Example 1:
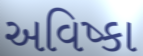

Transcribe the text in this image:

અવિષ્કા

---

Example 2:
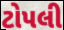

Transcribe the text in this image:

ટોપલી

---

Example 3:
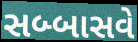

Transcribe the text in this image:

સબ્બાસવે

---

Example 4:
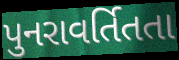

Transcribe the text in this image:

પુનરાવર્તિતતા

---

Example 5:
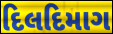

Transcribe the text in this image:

દિલદિમાગ